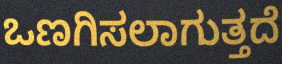
ಒಣಗಿಸಲಾಗುತ್ತದೆ